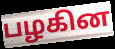
பழகின